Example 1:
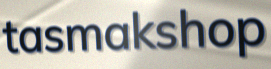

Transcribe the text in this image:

tasmakshop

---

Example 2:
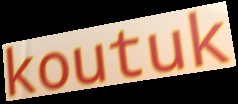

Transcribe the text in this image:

koutuk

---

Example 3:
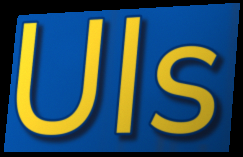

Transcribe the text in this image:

UIs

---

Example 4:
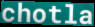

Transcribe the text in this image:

chotla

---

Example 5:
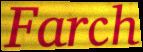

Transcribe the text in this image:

Farch